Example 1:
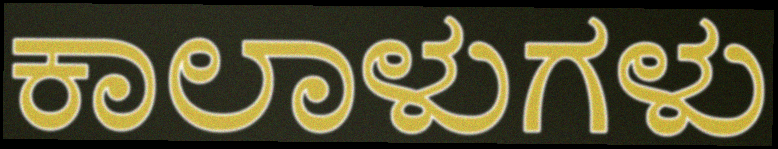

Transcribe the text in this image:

ಕಾಲಾಳುಗಳು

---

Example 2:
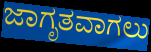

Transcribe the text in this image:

ಜಾಗೃತವಾಗಲು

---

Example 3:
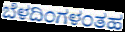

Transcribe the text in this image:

ಬೆಳದಿಂಗಳಂತಹ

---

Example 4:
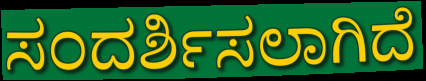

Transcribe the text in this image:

ಸಂದರ್ಶಿಸಲಾಗಿದೆ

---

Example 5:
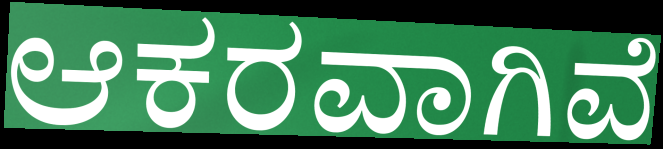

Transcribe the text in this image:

ಆಕರವಾಗಿವೆ